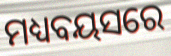
ମଧ୍ୟବୟସରେ